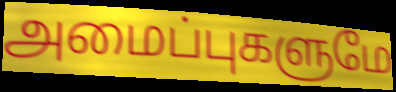
அமைப்புகளுமே